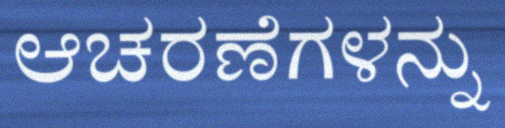
ಆಚರಣೆಗಳನ್ನು